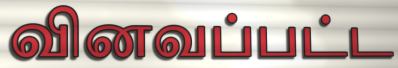
வினவப்பட்ட